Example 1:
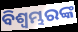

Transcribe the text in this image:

ବିଶ୍ୱମ୍ଭରଙ୍କ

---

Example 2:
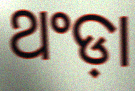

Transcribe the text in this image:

ଥଂଡ଼ା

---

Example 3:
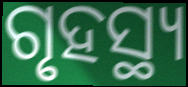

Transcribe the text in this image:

ଗୃହସ୍ଥ୍ୟ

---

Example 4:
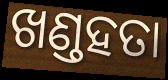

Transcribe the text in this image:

ଖଣ୍ଡହତା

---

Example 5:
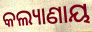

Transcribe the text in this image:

କଲ୍ୟାଣାୟ